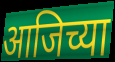
आजिच्या